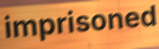
imprisoned